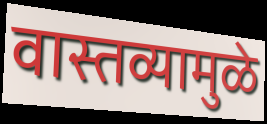
वास्तव्यामुळे